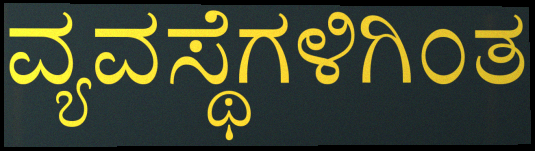
ವ್ಯವಸ್ಥೆಗಳಿಗಿಂತ